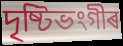
দৃষ্টিভংগীৰ